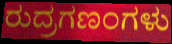
ರುದ್ರಗಣಂಗಳು